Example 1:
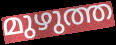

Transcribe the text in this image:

മുഴുത്ത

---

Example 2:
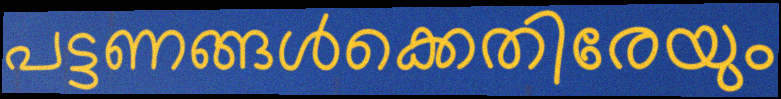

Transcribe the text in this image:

പട്ടണങ്ങൾക്കെതിരേയും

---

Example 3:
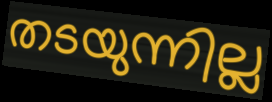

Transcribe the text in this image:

തടയുന്നില്ല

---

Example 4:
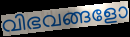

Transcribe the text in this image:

വിഭവങ്ങളോ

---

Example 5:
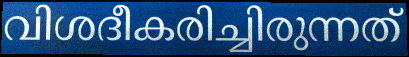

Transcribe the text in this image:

വിശദീകരിച്ചിരുന്നത്